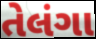
તેલંગા